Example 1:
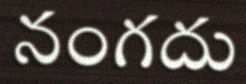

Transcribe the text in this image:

నంగదు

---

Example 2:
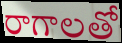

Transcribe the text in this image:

రాగాలతో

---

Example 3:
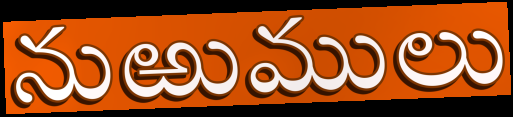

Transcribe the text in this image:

నుఱుములు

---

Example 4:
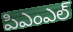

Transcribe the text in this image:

పిఎంఎల్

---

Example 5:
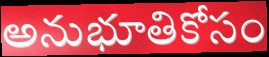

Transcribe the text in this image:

అనుభూతికోసం